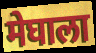
मेघाला